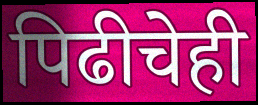
पिढीचेही